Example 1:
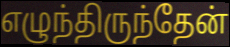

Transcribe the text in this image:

எழுந்திருந்தேன்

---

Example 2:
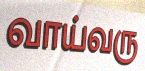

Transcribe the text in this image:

வாய்வரு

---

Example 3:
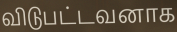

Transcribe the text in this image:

விடுபட்டவனாக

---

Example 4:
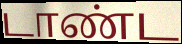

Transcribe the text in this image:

டாண்ட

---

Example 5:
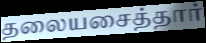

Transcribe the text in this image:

தலையசைத்தார்